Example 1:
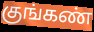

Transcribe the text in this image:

குங்கண்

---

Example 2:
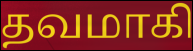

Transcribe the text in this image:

தவமாகி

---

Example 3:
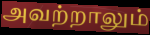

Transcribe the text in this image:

அவற்றாலும்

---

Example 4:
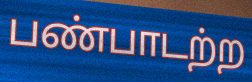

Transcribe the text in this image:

பண்பாடற்ற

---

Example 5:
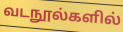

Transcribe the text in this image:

வடநூல்களில்